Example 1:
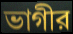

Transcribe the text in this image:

ভাগীর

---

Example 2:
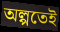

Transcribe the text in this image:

অল্পতেই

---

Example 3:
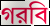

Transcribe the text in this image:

গরবি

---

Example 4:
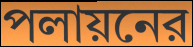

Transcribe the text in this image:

পলায়নের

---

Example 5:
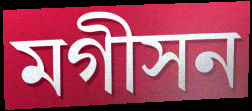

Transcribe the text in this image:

মগীসন